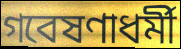
গবেষণাধর্মী